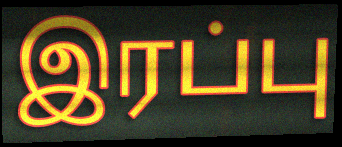
இரப்பு